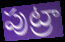
పుట్రా